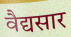
वैद्यसार